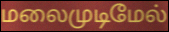
மலைமுடிமேல்